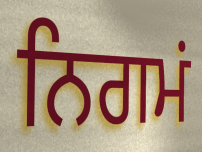
ਨਿਗਮਂ